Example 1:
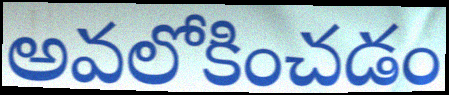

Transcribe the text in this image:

అవలోకించడం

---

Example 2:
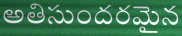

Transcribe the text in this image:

అతిసుందరమైన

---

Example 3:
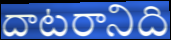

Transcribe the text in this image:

దాటరానిది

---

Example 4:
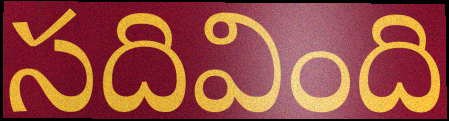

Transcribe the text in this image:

సదివింది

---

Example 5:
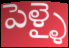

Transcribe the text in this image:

పెళ్ళై